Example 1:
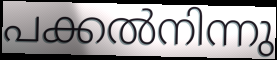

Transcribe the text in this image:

പക്കൽനിന്നു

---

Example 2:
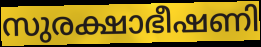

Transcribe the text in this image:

സുരക്ഷാഭീഷണി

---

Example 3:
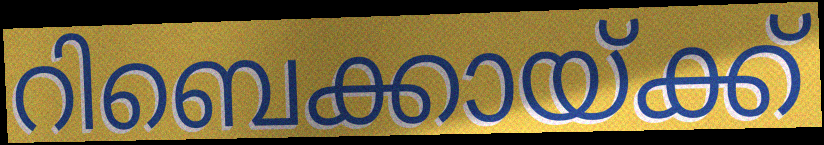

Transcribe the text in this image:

റിബെക്കായ്ക്ക്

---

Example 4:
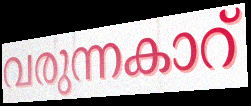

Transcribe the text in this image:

വരുന്നകാറ്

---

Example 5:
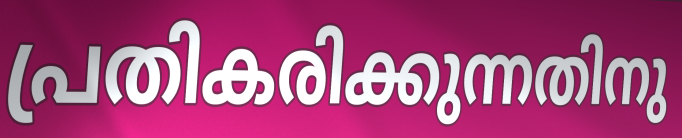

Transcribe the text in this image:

പ്രതികരിക്കുന്നതിനു